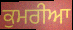
ਕੁਮਰੀਆ